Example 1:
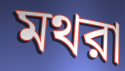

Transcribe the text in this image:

মথরা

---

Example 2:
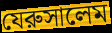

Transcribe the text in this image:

যেরুসালেম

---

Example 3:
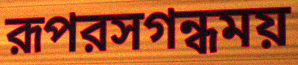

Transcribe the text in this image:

রূপরসগন্ধময়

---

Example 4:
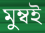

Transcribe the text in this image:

মুম্বই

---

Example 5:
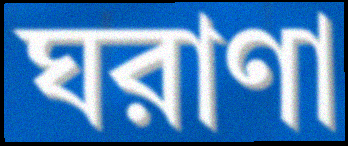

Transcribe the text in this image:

ঘরাণা